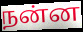
நன்ன